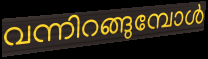
വന്നിറങ്ങുമ്പോൾ